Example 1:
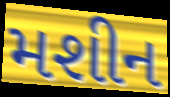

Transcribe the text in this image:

મશીન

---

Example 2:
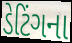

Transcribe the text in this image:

ડેટિંગના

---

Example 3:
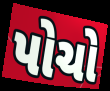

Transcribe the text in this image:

પોચો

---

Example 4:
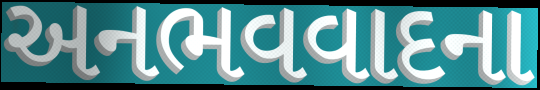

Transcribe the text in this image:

અનભવવાદના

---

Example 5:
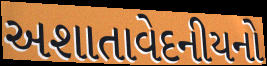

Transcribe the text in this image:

અશાતાવેદનીયનો